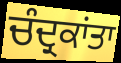
ਚੰਦ੍ਰਕਾਂਤਾ